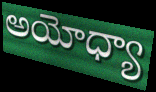
అయోధ్యా